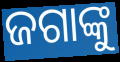
ଜଗାଙ୍କୁ